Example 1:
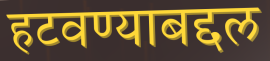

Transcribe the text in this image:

हटवण्याबद्दल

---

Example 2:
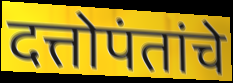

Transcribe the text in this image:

दत्तोपंतांचे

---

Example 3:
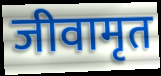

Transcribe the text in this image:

जीवामृत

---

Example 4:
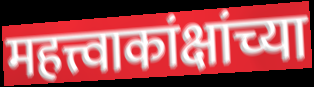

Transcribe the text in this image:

महत्त्वाकांक्षांच्या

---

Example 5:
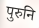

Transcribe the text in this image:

पुरुनि